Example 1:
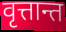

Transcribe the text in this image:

वृत्तान्त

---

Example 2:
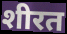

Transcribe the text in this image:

शीरत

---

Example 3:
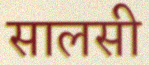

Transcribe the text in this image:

सालसी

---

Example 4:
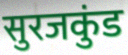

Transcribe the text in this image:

सुरजकुंड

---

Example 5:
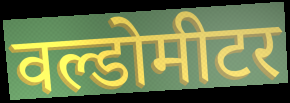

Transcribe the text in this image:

वल्डोमीटर